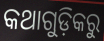
କଥାଗୁଡ଼ିକରୁ